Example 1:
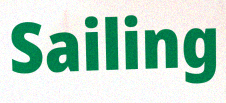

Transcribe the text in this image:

Sailing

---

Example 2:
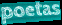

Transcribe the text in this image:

poetas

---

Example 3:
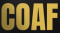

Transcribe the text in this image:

COAF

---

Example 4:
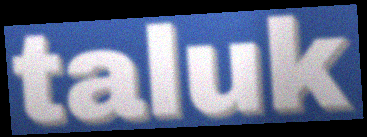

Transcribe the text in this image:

taluk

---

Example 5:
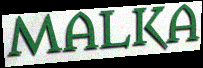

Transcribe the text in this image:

MALKA